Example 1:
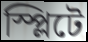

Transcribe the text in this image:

স্প্লিটে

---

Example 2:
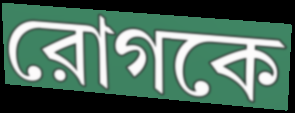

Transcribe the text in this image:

রোগকে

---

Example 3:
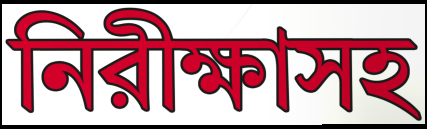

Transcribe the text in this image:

নিরীক্ষাসহ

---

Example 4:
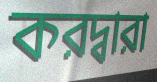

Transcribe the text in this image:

করদ্বারা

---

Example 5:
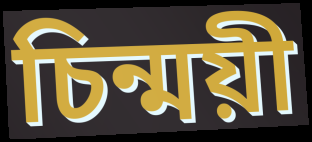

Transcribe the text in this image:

চিন্ময়ী